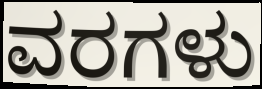
ವರಗಳು